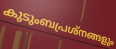
കുടുംബപ്രശ്നങ്ങളും